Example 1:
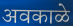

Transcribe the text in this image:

अवकाळे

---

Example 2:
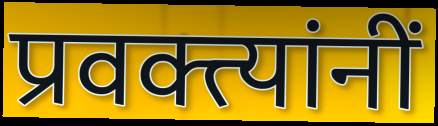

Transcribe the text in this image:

प्रवक्त्यांनीं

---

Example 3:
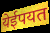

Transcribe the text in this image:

येईपयत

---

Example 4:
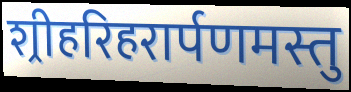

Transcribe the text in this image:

श्रीहरिहरार्पणमस्तु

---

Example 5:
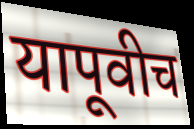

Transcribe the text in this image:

यापूवीच